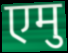
एमु